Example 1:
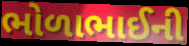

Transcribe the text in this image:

ભોળાભાઈની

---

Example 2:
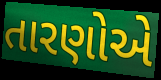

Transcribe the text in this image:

તારણોએ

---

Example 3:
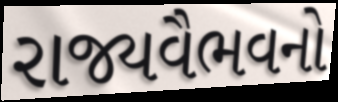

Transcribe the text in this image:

રાજ્યવૈભવનો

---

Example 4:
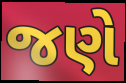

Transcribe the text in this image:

જણે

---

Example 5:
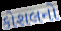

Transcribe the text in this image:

કોશલનો